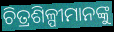
ଚିତ୍ରଶିଳ୍ପୀମାନଙ୍କୁ